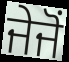
ਜੇਜੋਂ